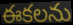
ఈకలను